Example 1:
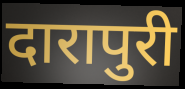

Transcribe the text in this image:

दारापुरी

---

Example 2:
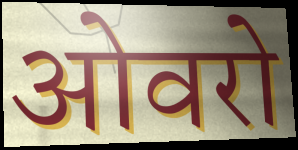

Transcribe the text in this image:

ओवरो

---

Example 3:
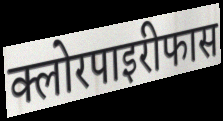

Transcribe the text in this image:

क्लोरपाइरीफास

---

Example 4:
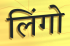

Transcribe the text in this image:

लिंगो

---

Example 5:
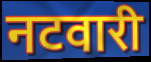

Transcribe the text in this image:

नटवारी